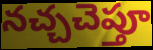
నచ్చచెప్తూ